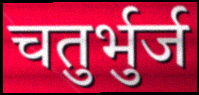
चतुर्भुर्ज